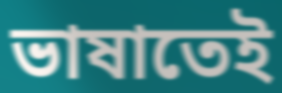
ভাষাতেই